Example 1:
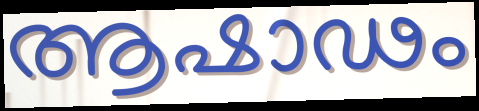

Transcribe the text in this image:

ആഷാഢം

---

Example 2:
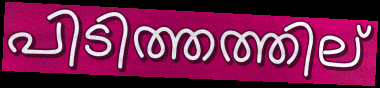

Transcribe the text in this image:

പിടിത്തത്തില്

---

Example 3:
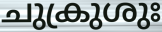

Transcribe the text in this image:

ചുക്രുശുഃ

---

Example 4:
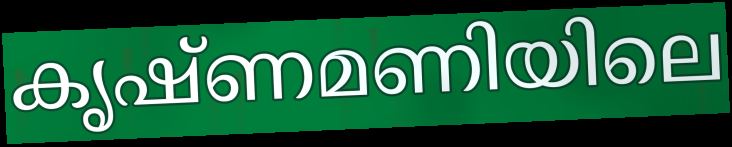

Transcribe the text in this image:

കൃഷ്ണമണിയിലെ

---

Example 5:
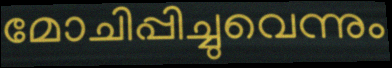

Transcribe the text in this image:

മോചിപ്പിച്ചുവെന്നും